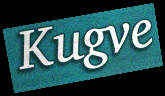
Kugve